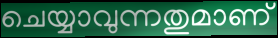
ചെയ്യാവുന്നതുമാണ്